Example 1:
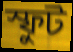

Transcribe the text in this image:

স্ফুট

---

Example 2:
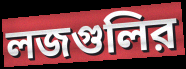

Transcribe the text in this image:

লজগুলির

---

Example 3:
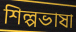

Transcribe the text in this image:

শিল্পভাষা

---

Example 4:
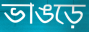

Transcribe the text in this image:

ভাঙড়ে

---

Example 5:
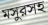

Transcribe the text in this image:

মসুরসহ